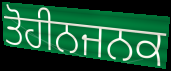
ਤੋਹੀਨਜਨਕ